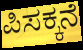
ಪಿಸಕ್ಕನೆ